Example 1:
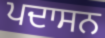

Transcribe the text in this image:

ਪਦਾਸਨ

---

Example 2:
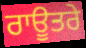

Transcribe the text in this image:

ਰਾਊਤਰੇ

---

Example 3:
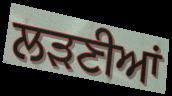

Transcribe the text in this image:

ਲੜਣੀਆਂ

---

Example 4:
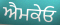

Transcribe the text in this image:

ਐਮਕੇਓ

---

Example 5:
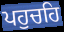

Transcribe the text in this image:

ਪਹੁਚਹਿ